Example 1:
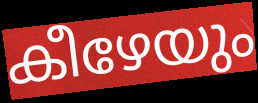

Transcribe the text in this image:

കീഴേയും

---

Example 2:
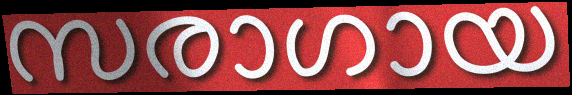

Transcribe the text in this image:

സരാഗായ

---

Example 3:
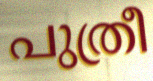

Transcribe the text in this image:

പുത്രീ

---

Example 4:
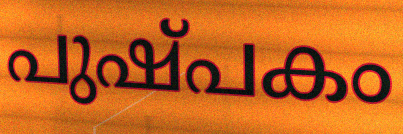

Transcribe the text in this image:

പുഷ്പകം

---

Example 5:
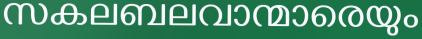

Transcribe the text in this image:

സകലബലവാന്മാരെയും